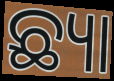
ଛ୍ୟା